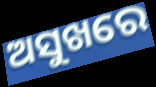
ଅସୁଖରେ